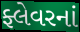
ફ્લેવરનાં